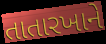
તાતારખાને